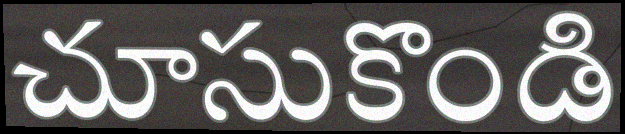
చూసుకొండి